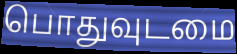
பொதுவுடமை